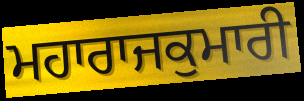
ਮਹਾਰਾਜਕੁਮਾਰੀ